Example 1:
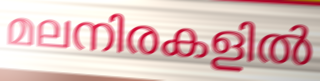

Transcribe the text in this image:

മലനിരകളിൽ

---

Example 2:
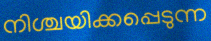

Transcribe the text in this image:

നിശ്ചയിക്കപ്പെടുന്ന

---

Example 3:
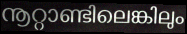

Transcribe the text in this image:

നൂറ്റാണ്ടിലെങ്കിലും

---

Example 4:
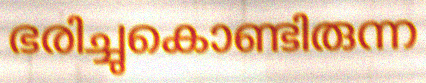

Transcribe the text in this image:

ഭരിച്ചുകൊണ്ടിരുന്ന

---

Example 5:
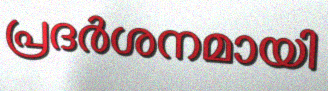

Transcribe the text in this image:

പ്രദർശനമായി